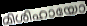
മിശിഹായോ